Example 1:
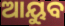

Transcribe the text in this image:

ଆୟୁବ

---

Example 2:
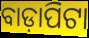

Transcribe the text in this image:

ବାଡ଼ାପିଟା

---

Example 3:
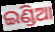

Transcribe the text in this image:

ଇଣ୍ଡିଆ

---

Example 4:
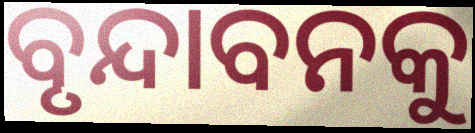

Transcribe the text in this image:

ବୃନ୍ଦାବନକୁ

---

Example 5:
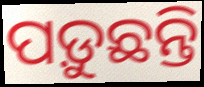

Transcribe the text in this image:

ପଡ଼ୁଛନ୍ତି